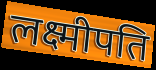
लक्ष्मीपति